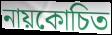
নায়কোচিত